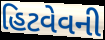
હિટવેવની